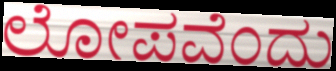
ಲೋಪವೆಂದು